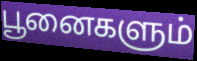
பூனைகளும்